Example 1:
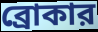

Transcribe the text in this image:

ব্রোকার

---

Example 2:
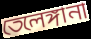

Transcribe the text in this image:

তেলেঙ্গানা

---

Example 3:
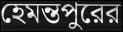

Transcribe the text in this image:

হেমন্তপুরের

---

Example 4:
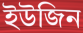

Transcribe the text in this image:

ইউজিন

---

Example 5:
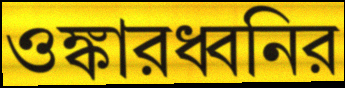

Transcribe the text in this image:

ওঙ্কারধ্বনির